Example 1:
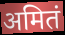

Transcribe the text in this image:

अमितं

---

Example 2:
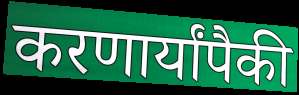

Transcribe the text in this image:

करणार्यांपैकी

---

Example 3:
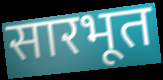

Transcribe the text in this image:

सारभूत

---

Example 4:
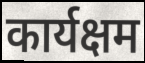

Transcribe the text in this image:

कार्यक्षम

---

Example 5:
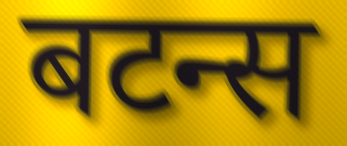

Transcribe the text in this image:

बटन्स